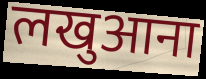
लखुआना